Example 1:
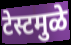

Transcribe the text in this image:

टेस्टमुळे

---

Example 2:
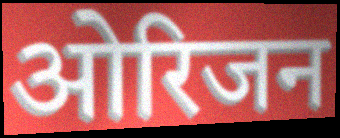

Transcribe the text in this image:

ओरिजन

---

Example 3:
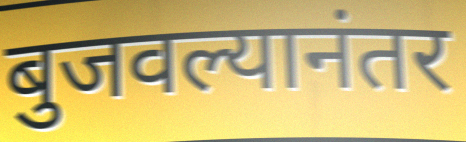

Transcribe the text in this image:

बुजवल्यानंतर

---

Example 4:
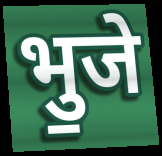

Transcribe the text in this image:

भु॒जे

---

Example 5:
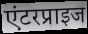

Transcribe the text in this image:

एंटरप्राइज